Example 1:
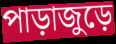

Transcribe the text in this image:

পাড়াজুড়ে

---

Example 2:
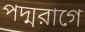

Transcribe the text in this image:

পদ্মরাগে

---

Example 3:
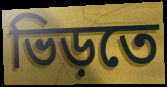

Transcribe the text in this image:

ভিড়তে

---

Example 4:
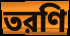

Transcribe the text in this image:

তরণি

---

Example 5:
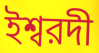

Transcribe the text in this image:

ইশ্বরদী